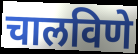
चालविणे